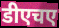
डीएचए